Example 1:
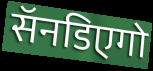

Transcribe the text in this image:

सॅनडिएगो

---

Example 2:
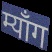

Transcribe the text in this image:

म्याँग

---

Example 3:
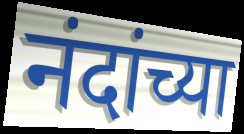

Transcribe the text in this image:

नंदांच्या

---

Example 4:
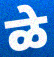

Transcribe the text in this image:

ळे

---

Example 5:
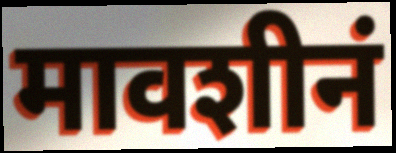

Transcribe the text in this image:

मावशीनं